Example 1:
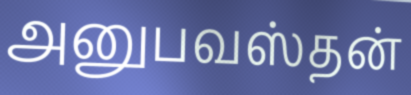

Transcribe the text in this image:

அனுபவஸ்தன்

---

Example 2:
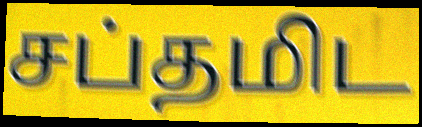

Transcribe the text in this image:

சப்தமிட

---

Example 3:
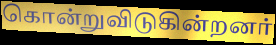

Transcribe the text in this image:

கொன்றுவிடுகின்றனர்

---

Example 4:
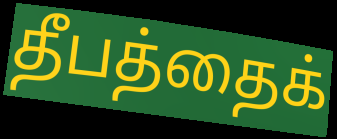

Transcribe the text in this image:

தீபத்தைக்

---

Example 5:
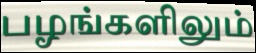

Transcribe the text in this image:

பழங்களிலும்